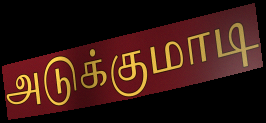
அடுக்குமாடி